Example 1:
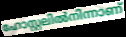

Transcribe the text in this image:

ഹോസ്റ്റലിൽനിന്നാണ്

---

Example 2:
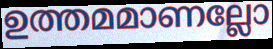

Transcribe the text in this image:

ഉത്തമമാണല്ലോ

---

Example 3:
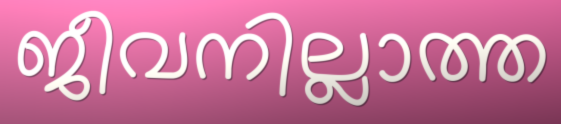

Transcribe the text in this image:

ജീവനില്ലാത്ത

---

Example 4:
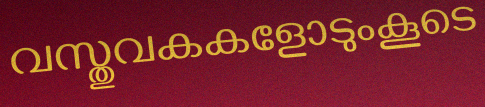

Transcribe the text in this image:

വസ്തുവകകളോടുംകൂടെ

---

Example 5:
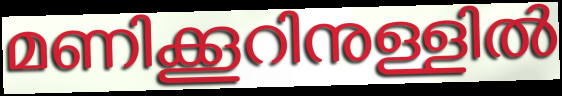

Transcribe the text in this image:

മണിക്കൂറിനുള്ളിൽ